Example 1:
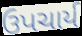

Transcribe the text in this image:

ઉપચાર્ય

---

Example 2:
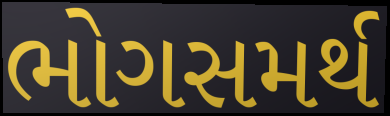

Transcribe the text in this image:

ભોગસમર્થ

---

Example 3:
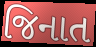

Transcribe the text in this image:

જિનાત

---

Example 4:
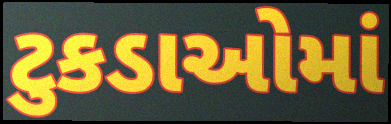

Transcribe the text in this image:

ટુકડાઓમાં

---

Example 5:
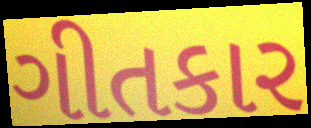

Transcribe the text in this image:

ગીતકાર